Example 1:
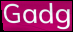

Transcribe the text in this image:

Gadg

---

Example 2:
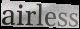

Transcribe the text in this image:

airless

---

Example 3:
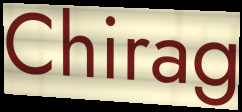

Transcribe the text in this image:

Chirag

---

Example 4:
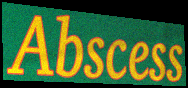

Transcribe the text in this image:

Abscess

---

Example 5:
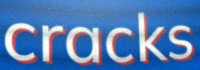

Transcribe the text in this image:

cracks